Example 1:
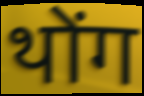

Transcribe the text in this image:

थोंग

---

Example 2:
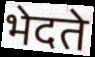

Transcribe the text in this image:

भेदते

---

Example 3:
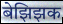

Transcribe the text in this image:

बेझिझक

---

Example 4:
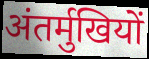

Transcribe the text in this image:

अंतर्मुखियों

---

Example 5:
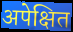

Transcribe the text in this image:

अपेक्षित